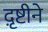
द़ृष्टीने